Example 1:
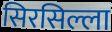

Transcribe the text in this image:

सिरसिल्ला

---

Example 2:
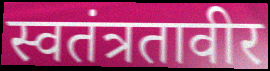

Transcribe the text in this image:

स्वतंत्रतावीर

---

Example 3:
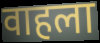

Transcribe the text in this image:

वाहला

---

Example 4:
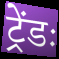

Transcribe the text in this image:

ट्रेंडः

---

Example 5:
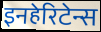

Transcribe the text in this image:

इनहेरिटेन्स